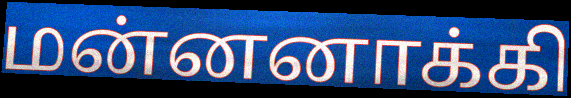
மன்னனாக்கி